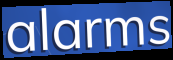
alarms